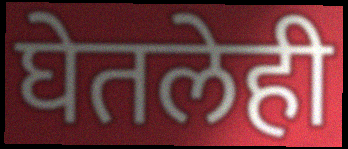
घेतलेही